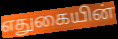
எதுகையின்